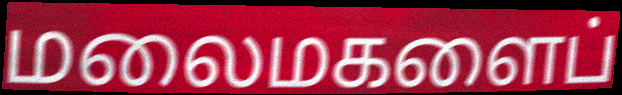
மலைமகளைப்